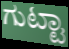
ಗುಟ್ಟಾ